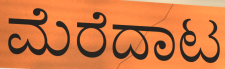
ಮೆರೆದಾಟ